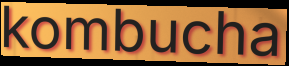
kombucha